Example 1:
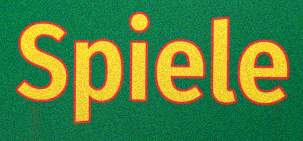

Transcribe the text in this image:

Spiele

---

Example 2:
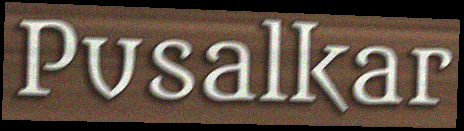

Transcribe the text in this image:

Pusalkar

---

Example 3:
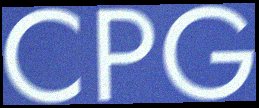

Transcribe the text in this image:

CPG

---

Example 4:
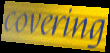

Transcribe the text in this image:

covering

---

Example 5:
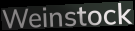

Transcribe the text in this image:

Weinstock